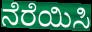
ನೆರೆಯಿಸಿ